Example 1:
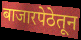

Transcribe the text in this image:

बाजारपेठेतून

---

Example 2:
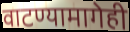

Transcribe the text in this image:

वाटण्यामागेही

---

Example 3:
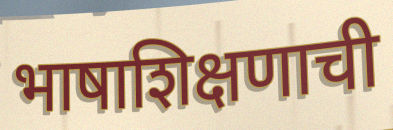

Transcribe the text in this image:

भाषाशिक्षणाची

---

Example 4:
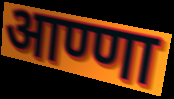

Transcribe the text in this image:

आण्णा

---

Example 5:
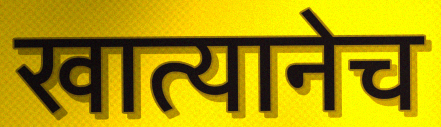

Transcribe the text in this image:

खात्यानेच